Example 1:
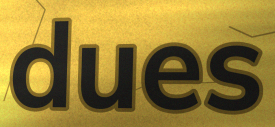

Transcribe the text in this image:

dues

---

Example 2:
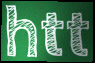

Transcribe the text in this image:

htt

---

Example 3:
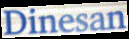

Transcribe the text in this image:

Dinesan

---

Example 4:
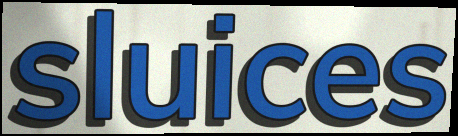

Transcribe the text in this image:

sluices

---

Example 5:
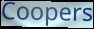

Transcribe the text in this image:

Coopers